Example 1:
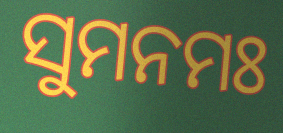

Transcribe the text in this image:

ସୁମନମଃ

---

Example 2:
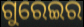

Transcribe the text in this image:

ଗୁରେଇର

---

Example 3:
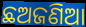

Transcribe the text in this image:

ଛଅଜଣିଆ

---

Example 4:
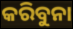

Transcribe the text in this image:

କରିବୁନା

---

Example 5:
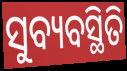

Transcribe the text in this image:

ସୁବ୍ୟବସ୍ଥିତି